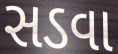
સડવા